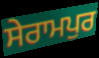
ਸੇਰਾਮਪੁਰ